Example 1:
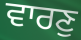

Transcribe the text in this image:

ਵਾਰਣੁ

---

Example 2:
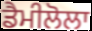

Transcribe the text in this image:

ਡੈਮੀਲੋਲਾ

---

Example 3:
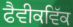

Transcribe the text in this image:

ਫੈਵੀਕਵਿੱਕ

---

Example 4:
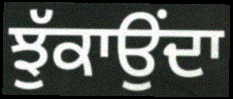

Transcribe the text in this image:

ਝੁੱਕਾਉਂਦਾ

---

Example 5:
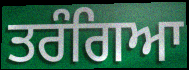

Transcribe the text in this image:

ਤਰੰਗਿਆ